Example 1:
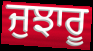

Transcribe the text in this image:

ਜੁਝਾਰੂ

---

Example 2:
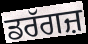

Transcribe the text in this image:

ਡਰੱਗਜ਼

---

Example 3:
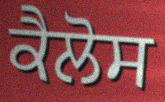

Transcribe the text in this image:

ਕੈਲੋਸ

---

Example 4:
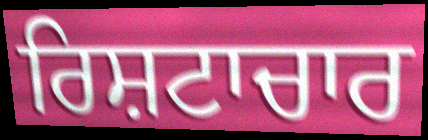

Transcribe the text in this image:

ਰਿਸ਼ਟਾਚਾਰ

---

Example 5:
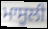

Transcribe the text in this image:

ਮਾਸੂਲੀ